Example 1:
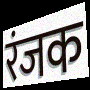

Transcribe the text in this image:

रंजक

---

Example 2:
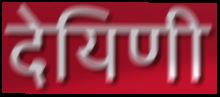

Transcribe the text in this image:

देयिणी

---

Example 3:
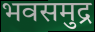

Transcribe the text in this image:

भवसमुद्र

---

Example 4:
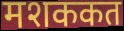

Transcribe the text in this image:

मशककत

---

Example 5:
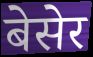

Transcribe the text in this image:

बेसेर